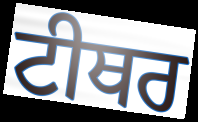
ਟੀਥਰ